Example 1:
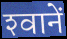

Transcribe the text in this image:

श्वानें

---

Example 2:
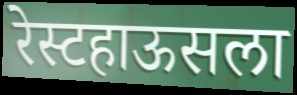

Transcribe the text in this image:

रेस्टहाऊसला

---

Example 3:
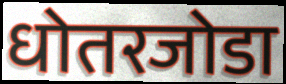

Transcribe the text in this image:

धोतरजोडा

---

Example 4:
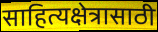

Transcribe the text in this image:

साहित्यक्षेत्रासाठी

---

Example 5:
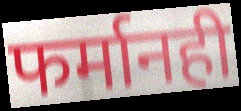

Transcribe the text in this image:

फर्मानही